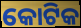
କୋଟିକ